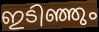
ഇടിഞ്ഞും